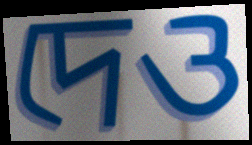
দেও